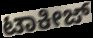
ಟಾಕೀಜ್